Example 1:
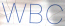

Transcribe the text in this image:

WBC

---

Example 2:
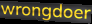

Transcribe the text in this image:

wrongdoer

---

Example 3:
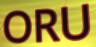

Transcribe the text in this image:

ORU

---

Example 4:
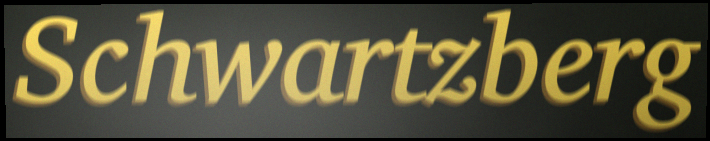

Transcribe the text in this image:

Schwartzberg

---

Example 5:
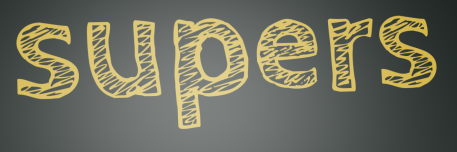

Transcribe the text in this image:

supers